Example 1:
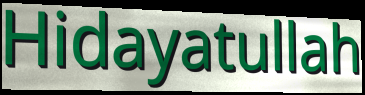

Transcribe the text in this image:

Hidayatullah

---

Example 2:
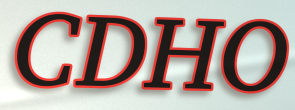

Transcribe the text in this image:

CDHO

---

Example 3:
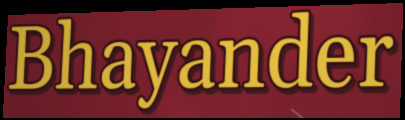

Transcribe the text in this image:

Bhayander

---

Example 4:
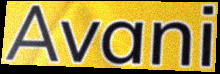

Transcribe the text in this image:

Avani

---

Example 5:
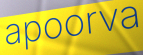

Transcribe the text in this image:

apoorva